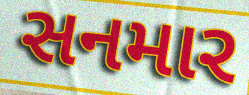
સનમાર